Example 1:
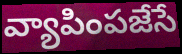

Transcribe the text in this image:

వ్యాపింపజేసే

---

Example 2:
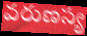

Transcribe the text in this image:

వరుణస్య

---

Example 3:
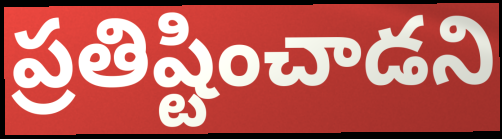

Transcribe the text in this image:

ప్రతిష్టించాడని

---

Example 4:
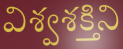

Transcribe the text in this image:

విశ్వశక్తిని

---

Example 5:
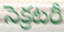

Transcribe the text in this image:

సెక్రటరీ